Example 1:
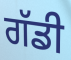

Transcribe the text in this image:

ਗੱਡੀ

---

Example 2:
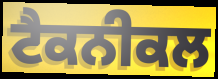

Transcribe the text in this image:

ਟੈਕਨੀਕਲ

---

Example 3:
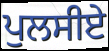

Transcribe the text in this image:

ਪੁਲਸੀਏ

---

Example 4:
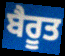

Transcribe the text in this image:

ਬੈਰੂਤ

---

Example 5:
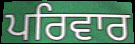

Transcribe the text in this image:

ਪਰਿਵਾਰ